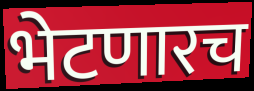
भेटणारच